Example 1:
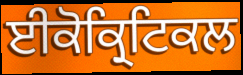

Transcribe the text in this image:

ਈਕੋਕ੍ਰਿਟਿਕਲ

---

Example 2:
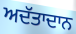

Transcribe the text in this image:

ਅਦੱਤਾਦਾਨ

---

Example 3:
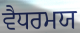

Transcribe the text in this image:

ਵੈਧਰਮਯ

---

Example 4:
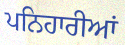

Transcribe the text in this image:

ਪਨਿਹਾਰੀਆਂ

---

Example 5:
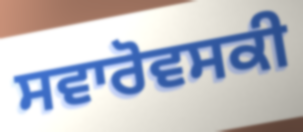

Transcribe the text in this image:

ਸਵਾਰੋਵਸਕੀ